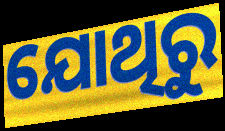
ଯୋଥିରୁ